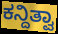
ಕನ್ದಿತ್ವಾ